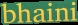
bhaini